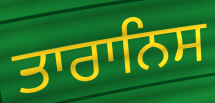
ਤਾਰਾਨਿਸ